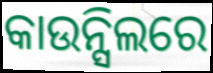
କାଉନ୍ସିଲରେ